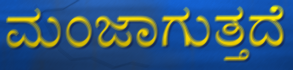
ಮಂಜಾಗುತ್ತದೆ